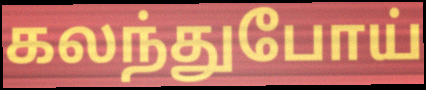
கலந்துபோய்